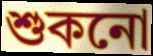
শুকনো